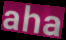
aha